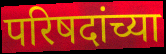
परिषदांच्या